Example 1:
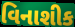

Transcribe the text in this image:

વિનાશીક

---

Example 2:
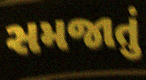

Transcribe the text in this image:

સમજાતું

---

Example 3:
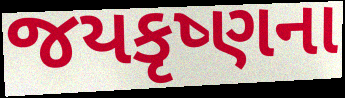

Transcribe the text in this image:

જયકૃષ્ણના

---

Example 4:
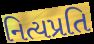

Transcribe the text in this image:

નિત્યપ્રતિ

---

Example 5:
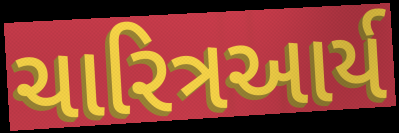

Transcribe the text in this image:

ચારિત્રઆર્ય